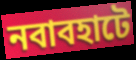
নবাবহাটে